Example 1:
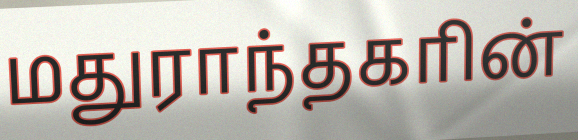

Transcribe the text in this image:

மதுராந்தகரின்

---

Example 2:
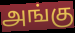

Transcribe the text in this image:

அங்கு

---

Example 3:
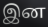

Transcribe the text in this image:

இன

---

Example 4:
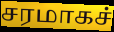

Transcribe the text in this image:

சரமாகச்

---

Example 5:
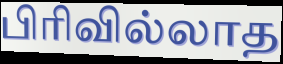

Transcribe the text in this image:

பிரிவில்லாத